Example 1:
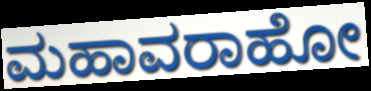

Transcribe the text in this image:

ಮಹಾವರಾಹೋ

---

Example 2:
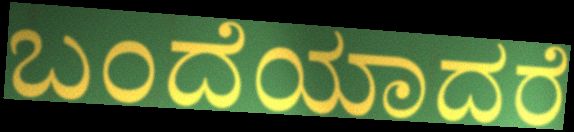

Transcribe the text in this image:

ಬಂದೆಯಾದರೆ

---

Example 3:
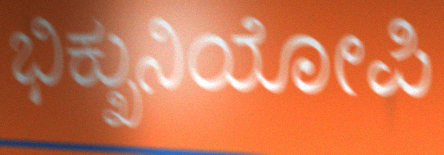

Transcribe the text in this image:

ಭಿಕ್ಖುನಿಯೋಪಿ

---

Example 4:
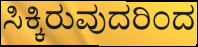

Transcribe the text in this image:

ಸಿಕ್ಕಿರುವುದರಿಂದ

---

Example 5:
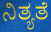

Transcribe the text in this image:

ನಿತ್ಯತೆ